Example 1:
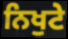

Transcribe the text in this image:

ਨਿਖੁਟੇ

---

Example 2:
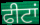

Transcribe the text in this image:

ਫੀਟਾਂ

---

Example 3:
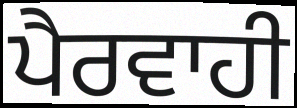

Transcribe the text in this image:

ਪੈਰਵਾਹੀ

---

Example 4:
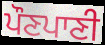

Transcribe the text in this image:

ਪੌਣਪਾਣੀ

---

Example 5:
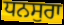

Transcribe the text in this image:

ਧਨਸੁਰਾ